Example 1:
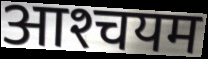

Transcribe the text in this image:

आश्चयम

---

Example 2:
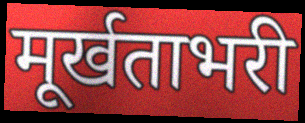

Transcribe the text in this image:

मूर्खताभरी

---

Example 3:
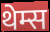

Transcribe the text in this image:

थेम्स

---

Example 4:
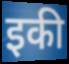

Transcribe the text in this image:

इकी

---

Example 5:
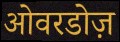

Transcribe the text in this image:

ओवरडोज़